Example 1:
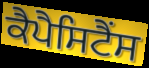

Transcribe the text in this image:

ਕੈਪੈਸਿਟੈਂਸ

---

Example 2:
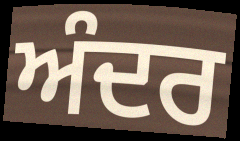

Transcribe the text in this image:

ਅੰਦਰ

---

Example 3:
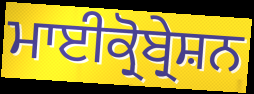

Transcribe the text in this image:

ਮਾਈਕ੍ਰੋਬ੍ਰੇਸ਼ਨ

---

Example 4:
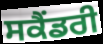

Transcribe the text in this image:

ਸਕੈੰਡਰੀ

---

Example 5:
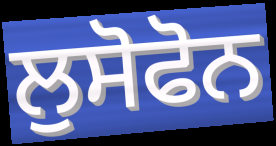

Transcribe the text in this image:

ਲੁਸੋਫੋਨ